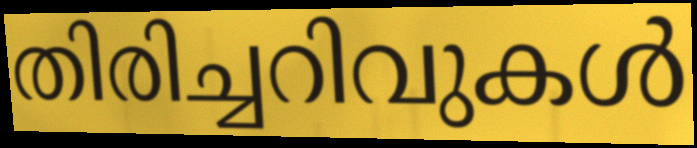
തിരിച്ചറിവുകൾ